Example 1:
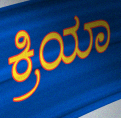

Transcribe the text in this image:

ಕ್ರಿಯಾ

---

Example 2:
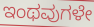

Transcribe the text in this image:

ಇಂಥವುಗಳೇ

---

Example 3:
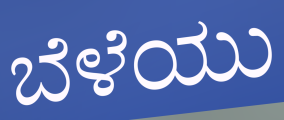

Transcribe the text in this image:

ಬೆಳೆಯು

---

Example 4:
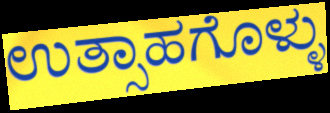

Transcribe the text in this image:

ಉತ್ಸಾಹಗೊಳ್ಳು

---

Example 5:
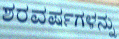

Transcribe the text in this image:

ಶರವರ್ಷಗಳನ್ನು